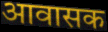
आवासक